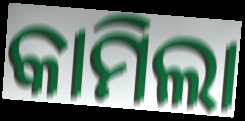
କାମିଲା